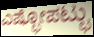
ಎಷ್ಟೋಪಟ್ಟು